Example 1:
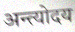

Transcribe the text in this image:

अन्त्योदय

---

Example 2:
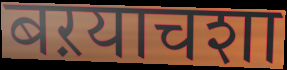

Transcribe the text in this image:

बऱयाचशा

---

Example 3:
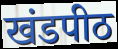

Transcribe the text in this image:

खंडपीठ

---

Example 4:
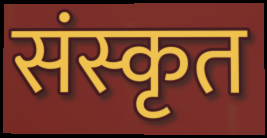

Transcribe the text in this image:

संस्‍कृत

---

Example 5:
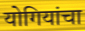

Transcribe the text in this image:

योगियांचा